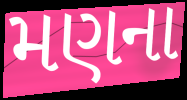
મણના